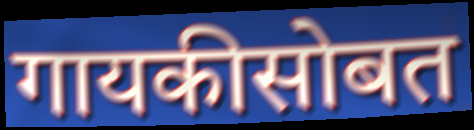
गायकीसोबत